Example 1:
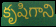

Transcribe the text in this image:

కృషిగాని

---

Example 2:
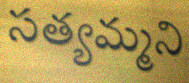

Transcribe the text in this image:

సత్యమ్మని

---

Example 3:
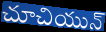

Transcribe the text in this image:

చూచియున్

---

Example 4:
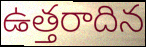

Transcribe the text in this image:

ఉత్తరాదిన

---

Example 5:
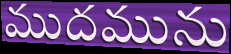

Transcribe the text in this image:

ముదమును